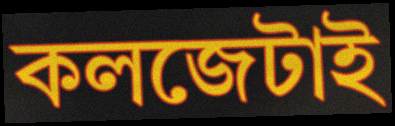
কলজেটাই